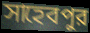
সাহেবপুর